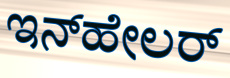
ಇನ್‌ಹೇಲರ್